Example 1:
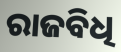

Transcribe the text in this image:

ରାଜବିଧି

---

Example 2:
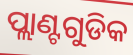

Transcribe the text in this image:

ପ୍ଲାଣ୍ଟଗୁଡିକ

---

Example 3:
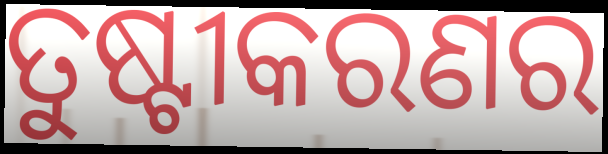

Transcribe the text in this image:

ତୁଷ୍ଟୀକରଣର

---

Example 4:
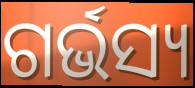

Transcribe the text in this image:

ଗର୍ଭସ୍ୟ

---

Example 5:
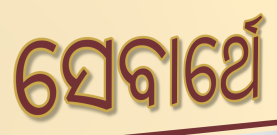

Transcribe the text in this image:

ସେବାର୍ଥେ